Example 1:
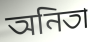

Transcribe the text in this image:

অনিতা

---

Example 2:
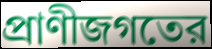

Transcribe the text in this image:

প্রাণীজগতের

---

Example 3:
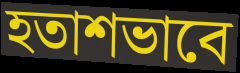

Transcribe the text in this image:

হতাশভাবে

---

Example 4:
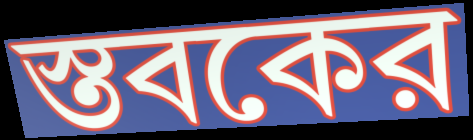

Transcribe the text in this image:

স্তবকের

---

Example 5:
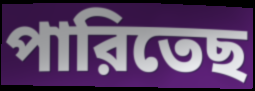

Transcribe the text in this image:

পারিতেছ